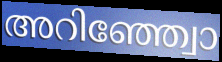
അറിഞ്ഞ്വോ